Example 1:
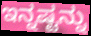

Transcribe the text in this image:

ಇನ್ನಷ್ಟನ್ನು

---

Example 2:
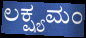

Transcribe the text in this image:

ಲಕ್ಷ್ಯಮಂ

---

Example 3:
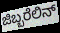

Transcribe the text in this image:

ಜಿಬ್ಬರೆಲಿನ್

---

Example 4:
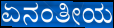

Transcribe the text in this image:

ಏನಂತೀಯ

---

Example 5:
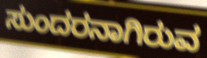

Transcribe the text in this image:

ಸುಂದರನಾಗಿರುವ